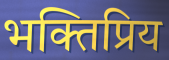
भक्तिप्रिय